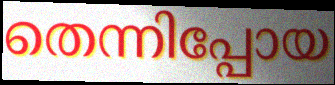
തെന്നിപ്പോയ